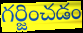
గర్జించడం